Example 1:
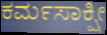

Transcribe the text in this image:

ಕರ್ಮಸಾಕ್ಷೀ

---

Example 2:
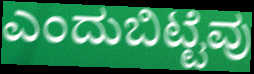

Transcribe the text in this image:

ಎಂದುಬಿಟ್ಟೆವು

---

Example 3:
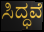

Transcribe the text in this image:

ಸಿದ್ಧವೆ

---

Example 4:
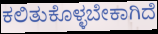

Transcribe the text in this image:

ಕಲಿತುಕೊಳ್ಳಬೇಕಾಗಿದೆ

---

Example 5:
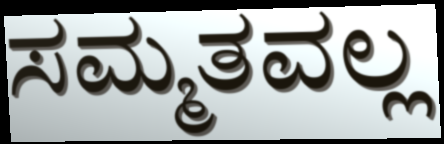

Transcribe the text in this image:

ಸಮ್ಮತವಲ್ಲ